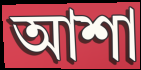
আশা